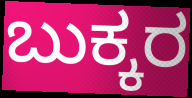
ಬುಕ್ಕರ